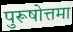
पुरूषोत्तमा